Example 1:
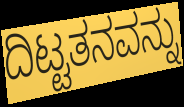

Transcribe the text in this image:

ದಿಟ್ಟತನವನ್ನು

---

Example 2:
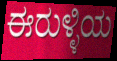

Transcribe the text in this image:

ಈರುಳ್ಳಿಯ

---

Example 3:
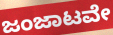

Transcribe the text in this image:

ಜಂಜಾಟವೇ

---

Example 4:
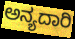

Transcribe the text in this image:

ಅನ್ಯದಾರಿ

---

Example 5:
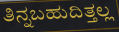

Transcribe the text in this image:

ತಿನ್ನಬಹುದಿತ್ತಲ್ಲ